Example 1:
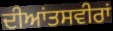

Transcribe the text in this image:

ਦੀਆਂਤਸਵੀਰਾਂ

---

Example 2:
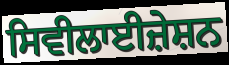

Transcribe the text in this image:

ਸਿਵੀਲਾਈਜ਼ੇਸ਼ਨ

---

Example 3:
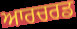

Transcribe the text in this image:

ਆਰਚਰਡ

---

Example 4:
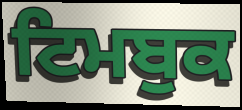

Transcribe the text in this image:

ਟਿਮਬੁਕ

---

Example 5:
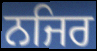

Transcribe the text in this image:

ਨਜਿਰ